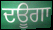
ਦਊਗਾ